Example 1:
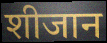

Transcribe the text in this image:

शीजान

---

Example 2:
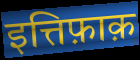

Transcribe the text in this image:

इत्तिफ़ाक़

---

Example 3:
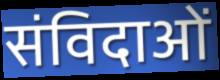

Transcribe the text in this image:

संविदाओं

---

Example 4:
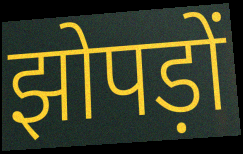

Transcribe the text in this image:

झोपड़ों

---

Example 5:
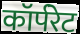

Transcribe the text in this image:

कॉर्परेट